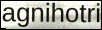
agnihotri